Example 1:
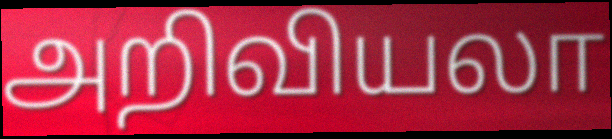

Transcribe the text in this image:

அறிவியலா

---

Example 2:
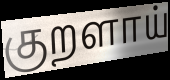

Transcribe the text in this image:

குறளாய்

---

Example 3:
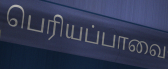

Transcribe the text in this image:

பெரியப்பாவை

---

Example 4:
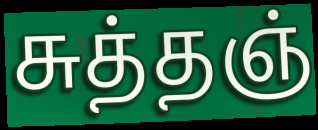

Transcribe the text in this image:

சுத்தஞ்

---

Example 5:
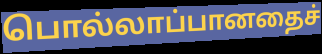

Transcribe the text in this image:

பொல்லாப்பானதைச்